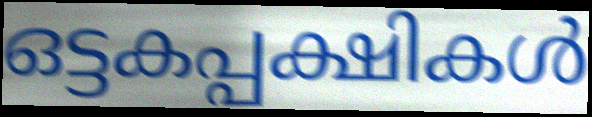
ഒട്ടകപ്പക്ഷികൾ